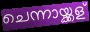
ചെന്നായ്ക്കള്